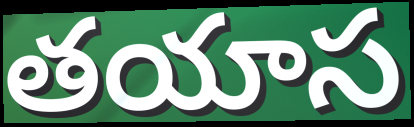
తయాస